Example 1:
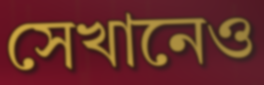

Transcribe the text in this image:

সেখানেও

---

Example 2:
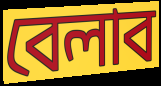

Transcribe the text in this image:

বেলাব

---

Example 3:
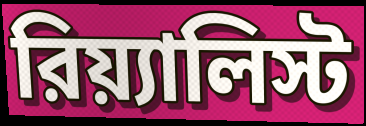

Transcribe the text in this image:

রিয়্যালিস্ট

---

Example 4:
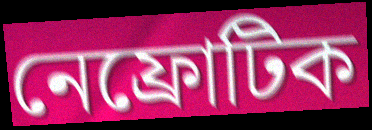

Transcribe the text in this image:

নেফ্রোটিক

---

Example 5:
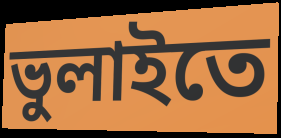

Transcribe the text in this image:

ভুলাইতে